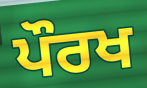
ਪੌਰਖ